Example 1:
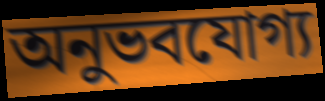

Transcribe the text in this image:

অনুভবযোগ্য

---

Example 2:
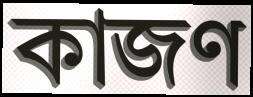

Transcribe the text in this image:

কাজণ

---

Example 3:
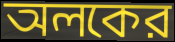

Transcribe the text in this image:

অলকের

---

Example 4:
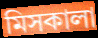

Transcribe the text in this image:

মিসকালা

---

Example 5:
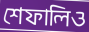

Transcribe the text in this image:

শেফালিও